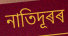
নাতিদূৰৰ